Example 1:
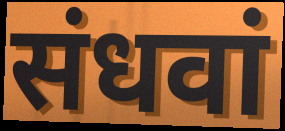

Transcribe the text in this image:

संधवां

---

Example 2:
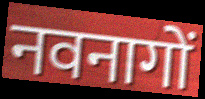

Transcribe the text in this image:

नवनागों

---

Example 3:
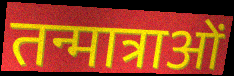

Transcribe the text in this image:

तन्मात्राओं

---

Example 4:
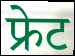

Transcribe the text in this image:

फ्रेट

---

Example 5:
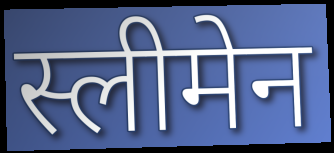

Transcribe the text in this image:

स्लीमेन